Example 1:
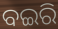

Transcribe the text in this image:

ବଇରି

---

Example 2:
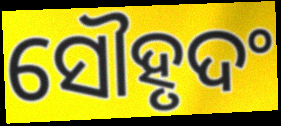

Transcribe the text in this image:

ସୌହୃଦଂ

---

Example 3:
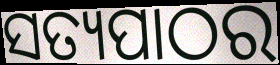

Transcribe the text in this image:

ସତ୍ୟପାଠର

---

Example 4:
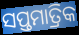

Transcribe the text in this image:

ସପ୍ତମାତ୍ରିକ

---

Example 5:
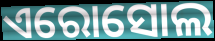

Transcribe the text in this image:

ଏରୋସୋଲ